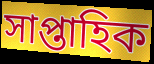
সাপ্তাহিক